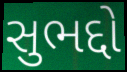
સુભદ્દો